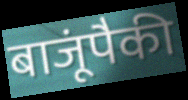
बाजूंपैकी